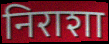
निराशा